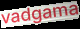
vadgama